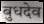
बुधदेव